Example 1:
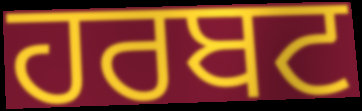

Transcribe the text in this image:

ਹਰਬਟ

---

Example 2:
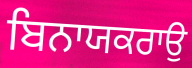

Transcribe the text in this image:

ਬਿਨਾਯਕਰਾਉ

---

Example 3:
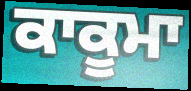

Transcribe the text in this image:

ਕਾਕੂਮਾ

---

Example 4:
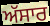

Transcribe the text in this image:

ਅੱਸਾਰ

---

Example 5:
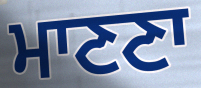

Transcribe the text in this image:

ਮਾਣਣਾ